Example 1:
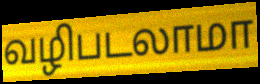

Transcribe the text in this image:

வழிபடலாமா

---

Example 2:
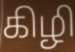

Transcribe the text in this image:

கிழி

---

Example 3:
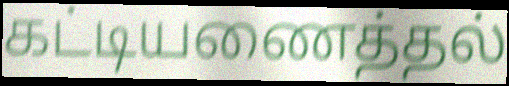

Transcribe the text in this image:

கட்டியணைத்தல்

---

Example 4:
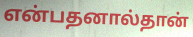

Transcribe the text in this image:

என்பதனால்தான்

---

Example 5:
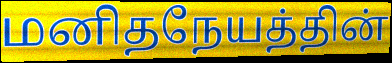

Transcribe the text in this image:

மனிதநேயத்தின்